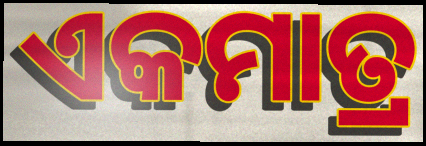
ଏକମାତ୍ର